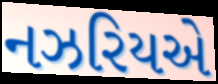
નઝરિયએ